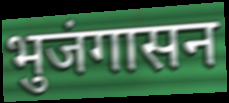
भुजंगासन